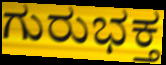
ಗುರುಭಕ್ತ